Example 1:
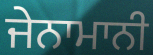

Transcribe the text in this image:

ਜੇਨਾਮਾਨੀ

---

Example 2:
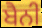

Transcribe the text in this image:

ਬੈਨੀ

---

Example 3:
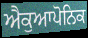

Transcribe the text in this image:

ਐਕੁਆਪੋਨਿਕ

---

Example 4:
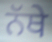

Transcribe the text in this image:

ਨੱਥੇ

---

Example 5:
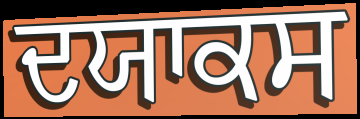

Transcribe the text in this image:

ਦਯਾਕਸ